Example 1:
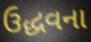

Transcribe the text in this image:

ઉદ્ધવના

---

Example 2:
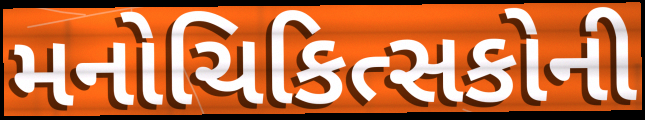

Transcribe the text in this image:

મનોચિકિત્સકોની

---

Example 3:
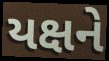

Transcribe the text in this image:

યક્ષને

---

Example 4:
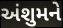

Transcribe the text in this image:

અંશુમને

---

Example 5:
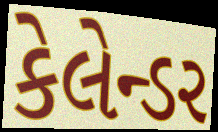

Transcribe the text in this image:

કેલેન્ડર